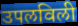
उपलविली